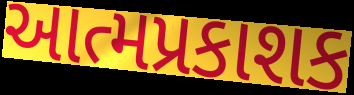
આત્મપ્રકાશક